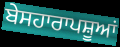
ਬੇਸਹਾਰਾਪਸ਼ੂਆਂ